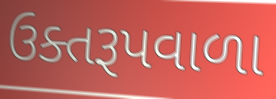
ઉક્તરૂપવાળા